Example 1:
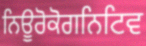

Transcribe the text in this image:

ਨਿਊਰੋਕੋਗਨਿਟਿਵ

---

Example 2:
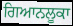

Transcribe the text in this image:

ਗਿਆਨਲੂਕਾ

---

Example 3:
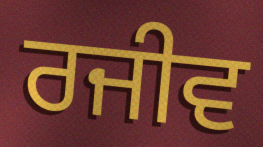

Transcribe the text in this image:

ਰਜੀਵ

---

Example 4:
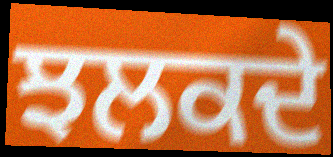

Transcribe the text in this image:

ਝਲਕਦੇ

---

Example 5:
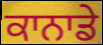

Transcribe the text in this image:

ਕਾਨਾਡੇ